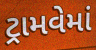
ટ્રામવેમાં